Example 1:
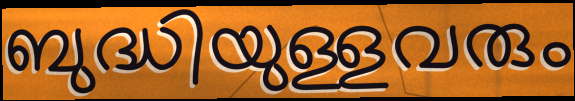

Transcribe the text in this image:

ബുദ്ധിയുള്ളവരും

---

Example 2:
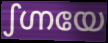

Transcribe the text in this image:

ഽഗ്നയേ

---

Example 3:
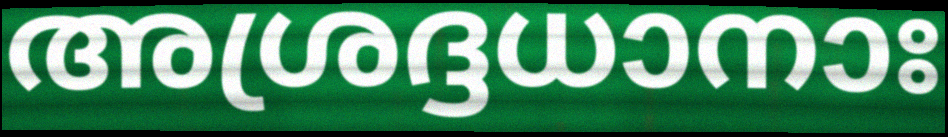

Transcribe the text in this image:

അശ്രദ്ദധാനാഃ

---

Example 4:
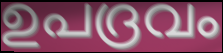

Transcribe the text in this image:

ഉപദ്രവം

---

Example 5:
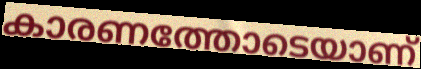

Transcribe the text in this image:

കാരണത്തോടെയാണ്